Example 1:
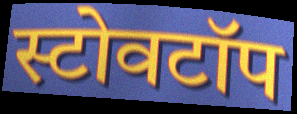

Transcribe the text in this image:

स्टोवटॉप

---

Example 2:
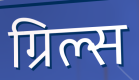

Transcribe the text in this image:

ग्रिल्स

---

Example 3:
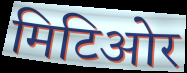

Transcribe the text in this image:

मिटिओर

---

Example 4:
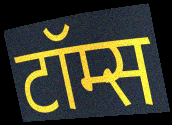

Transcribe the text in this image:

टॉम्स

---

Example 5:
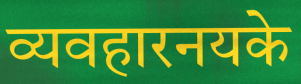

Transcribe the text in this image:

व्यवहारनयके